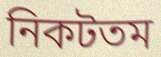
নিকটতম